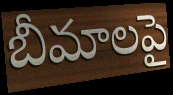
బీమాలపై